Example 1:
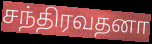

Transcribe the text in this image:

சந்திரவதனா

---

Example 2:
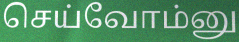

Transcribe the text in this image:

செய்வோம்னு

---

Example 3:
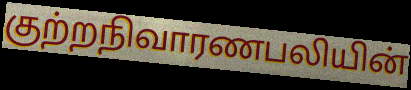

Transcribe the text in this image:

குற்றநிவாரணபலியின்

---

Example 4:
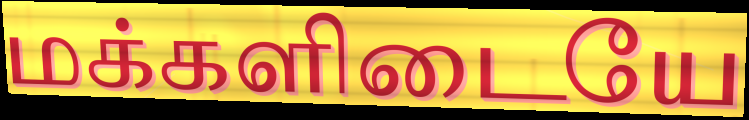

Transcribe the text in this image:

மக்களிடையே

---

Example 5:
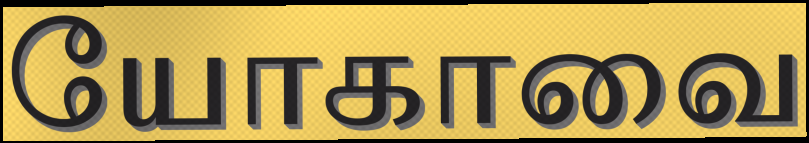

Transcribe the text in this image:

யோகாவை